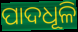
ପାଦଧୂଳି